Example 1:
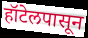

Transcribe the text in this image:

हॉटेलपासून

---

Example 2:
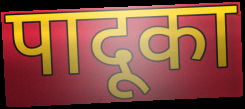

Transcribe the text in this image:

पादूका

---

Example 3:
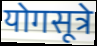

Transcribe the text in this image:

योगसूत्रे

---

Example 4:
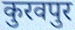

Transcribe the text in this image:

कुरवपुर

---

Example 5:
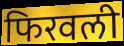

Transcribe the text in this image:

फिरवली